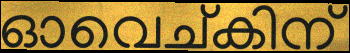
ഓവെച്കിന്